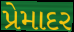
પ્રેમાદર